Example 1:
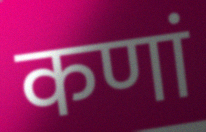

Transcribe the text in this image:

कणां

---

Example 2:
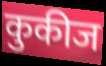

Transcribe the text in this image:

कुकीज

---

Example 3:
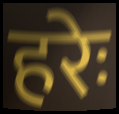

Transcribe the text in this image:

हरेः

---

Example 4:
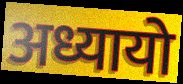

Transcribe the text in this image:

अध्यायो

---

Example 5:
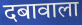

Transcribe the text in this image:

दबावाला